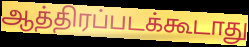
ஆத்திரப்படக்கூடாது